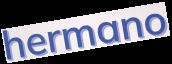
hermano